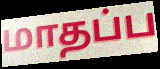
மாதப்ப